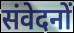
संवेदनों